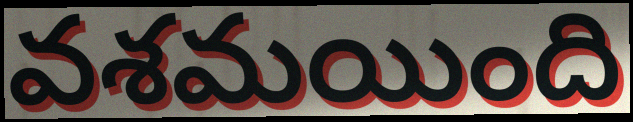
వశమయింది